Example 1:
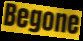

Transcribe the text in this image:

Begone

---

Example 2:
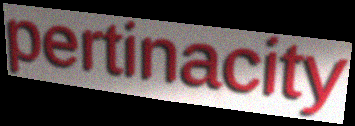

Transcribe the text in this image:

pertinacity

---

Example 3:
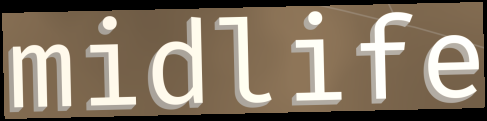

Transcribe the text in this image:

midlife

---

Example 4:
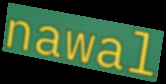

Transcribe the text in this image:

nawal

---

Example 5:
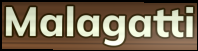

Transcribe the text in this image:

Malagatti